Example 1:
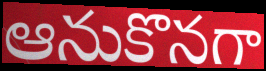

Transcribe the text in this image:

ఆనుకొనగా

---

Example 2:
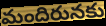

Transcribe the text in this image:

మందిరునకు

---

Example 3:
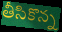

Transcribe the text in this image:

తీసికొన్న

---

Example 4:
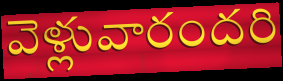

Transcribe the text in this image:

వెళ్లువారందరి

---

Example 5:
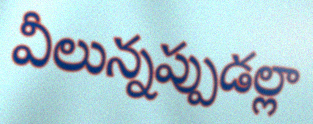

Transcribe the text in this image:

వీలున్నప్పుడల్లా